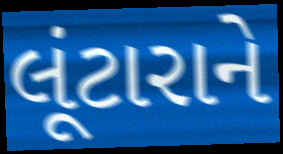
લૂંટારાને